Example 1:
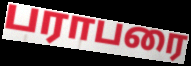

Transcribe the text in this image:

பராபரை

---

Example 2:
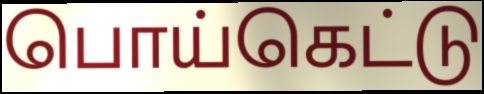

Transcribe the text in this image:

பொய்கெட்டு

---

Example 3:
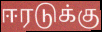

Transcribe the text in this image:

ஈரடுக்கு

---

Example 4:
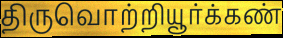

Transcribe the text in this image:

திருவொற்றியூர்க்கண்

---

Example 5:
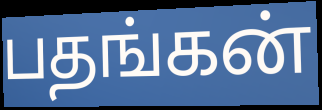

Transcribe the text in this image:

பதங்கன்